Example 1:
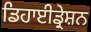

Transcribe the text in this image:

ਡਿਹਾਈਡ੍ਰੇਸ਼ਨ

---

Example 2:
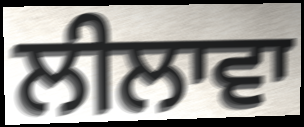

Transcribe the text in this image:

ਲੀਲਾਵਾ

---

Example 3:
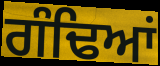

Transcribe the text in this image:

ਗੰਢਿਆਂ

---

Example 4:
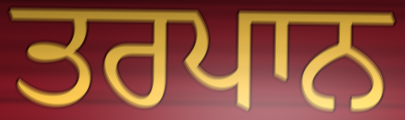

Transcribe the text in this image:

ਤਰਪਾਨ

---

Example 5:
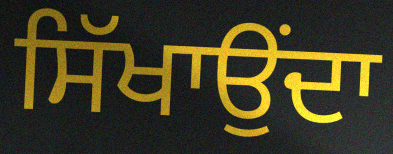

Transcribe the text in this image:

ਸਿੱਖਾਉਂਦਾ